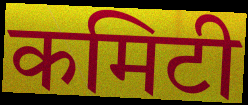
कमिटी